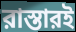
রাস্তারই